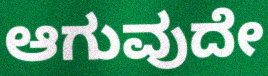
ಆಗುವುದೇ